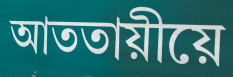
আততায়ীয়ে